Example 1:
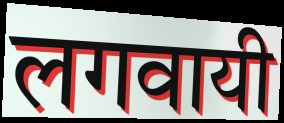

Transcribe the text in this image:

लगवायी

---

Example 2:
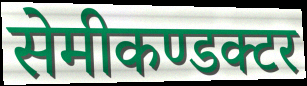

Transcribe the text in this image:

सेमीकण्डक्टर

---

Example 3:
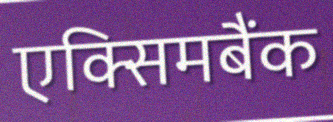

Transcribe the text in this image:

एक्सिमबैंक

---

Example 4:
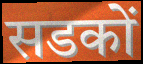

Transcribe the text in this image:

सडकों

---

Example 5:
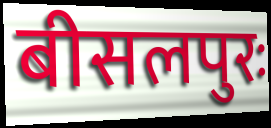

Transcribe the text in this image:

बीसलपुरः